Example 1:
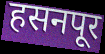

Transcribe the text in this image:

हसनपूर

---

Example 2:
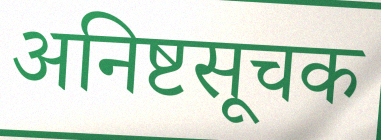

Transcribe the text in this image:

अनिष्टसूचक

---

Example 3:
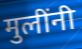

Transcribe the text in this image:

मुलींनी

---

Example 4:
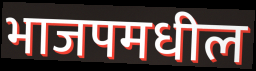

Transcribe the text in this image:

भाजपमधील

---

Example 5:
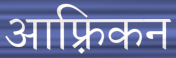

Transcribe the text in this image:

आफ़्रिकन